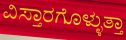
ವಿಸ್ತಾರಗೊಳ್ಳುತ್ತಾ